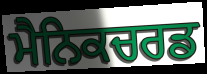
ਮੈਨਿਕਚਰਡ